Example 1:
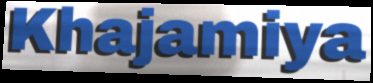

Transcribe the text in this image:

Khajamiya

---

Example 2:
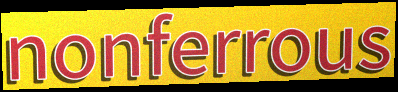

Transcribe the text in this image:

nonferrous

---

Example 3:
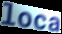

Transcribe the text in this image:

loca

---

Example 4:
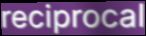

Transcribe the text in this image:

reciprocal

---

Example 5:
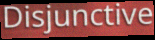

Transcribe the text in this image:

Disjunctive